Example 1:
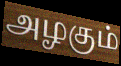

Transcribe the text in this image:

அழகும்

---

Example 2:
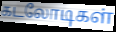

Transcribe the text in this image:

கடலோடிகள்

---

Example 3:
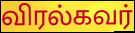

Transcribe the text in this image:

விரல்கவர்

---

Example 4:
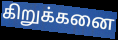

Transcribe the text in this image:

கிறுக்கனை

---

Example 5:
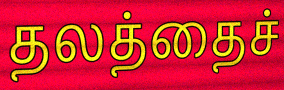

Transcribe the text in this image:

தலத்தைச்